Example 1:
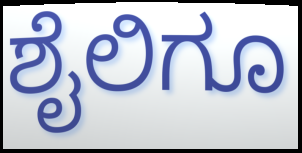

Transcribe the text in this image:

ಶೈಲಿಗೂ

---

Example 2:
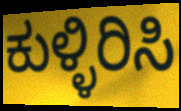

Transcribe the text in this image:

ಕುಳ್ಳಿರಿಸಿ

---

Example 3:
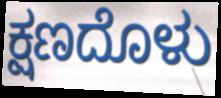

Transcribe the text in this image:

ಕ್ಷಣದೊಳು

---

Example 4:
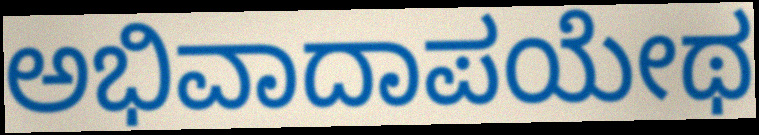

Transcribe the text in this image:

ಅಭಿವಾದಾಪಯೇಥ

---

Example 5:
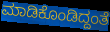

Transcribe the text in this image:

ಮಾಡಿಕೊಂಡಿದ್ದಂತೆ